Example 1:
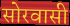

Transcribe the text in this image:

सोरवासी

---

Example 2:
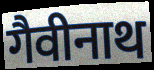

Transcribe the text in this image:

गैवीनाथ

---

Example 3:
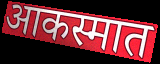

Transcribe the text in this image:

आकस्मात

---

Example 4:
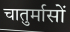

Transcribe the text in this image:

चातुर्मासों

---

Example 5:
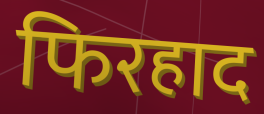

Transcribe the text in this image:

फिरहाद